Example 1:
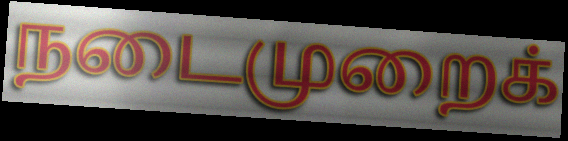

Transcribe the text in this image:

நடைமுறைக்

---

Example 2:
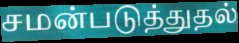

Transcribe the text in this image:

சமன்படுத்துதல்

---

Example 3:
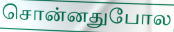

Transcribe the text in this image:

சொன்னதுபோல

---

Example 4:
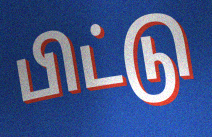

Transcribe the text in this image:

பிட்டு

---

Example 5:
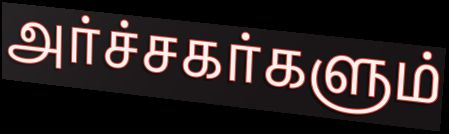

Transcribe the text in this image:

அர்ச்சகர்களும்